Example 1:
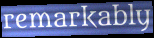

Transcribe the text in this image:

remarkably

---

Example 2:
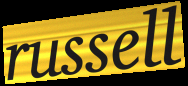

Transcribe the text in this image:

russell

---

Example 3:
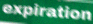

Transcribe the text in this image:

expiration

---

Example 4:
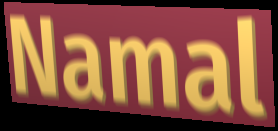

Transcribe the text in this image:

Namal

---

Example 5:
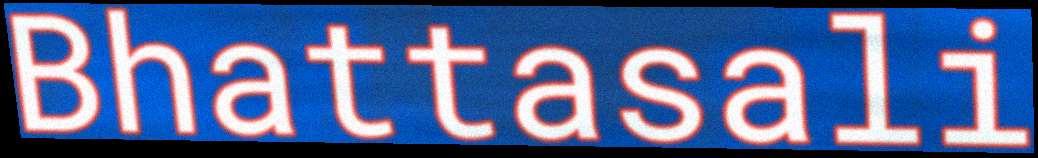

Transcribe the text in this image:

Bhattasali